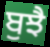
ਬੁਝੈ